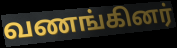
வணங்கினர்